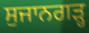
ਸੁਜਾਨਗੜ੍ਹ